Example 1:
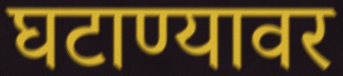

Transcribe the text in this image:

घटाण्यावर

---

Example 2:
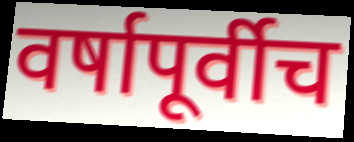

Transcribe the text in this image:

वर्षापूर्वीच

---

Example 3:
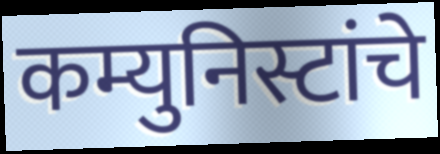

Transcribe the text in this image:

कम्युनिस्टांचे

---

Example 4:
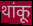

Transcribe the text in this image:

थांकू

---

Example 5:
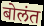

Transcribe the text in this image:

बोलंत